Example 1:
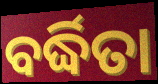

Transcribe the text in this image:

ବର୍ଦ୍ଧିତା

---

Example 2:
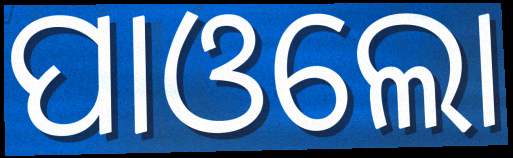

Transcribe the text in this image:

ପାଓଲୋ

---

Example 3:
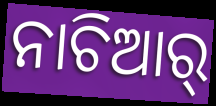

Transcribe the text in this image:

ନାଚିଆର୍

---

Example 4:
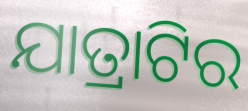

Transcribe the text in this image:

ଯାତ୍ରାଟିର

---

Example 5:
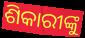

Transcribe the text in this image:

ଶିକାରୀଙ୍କୁ